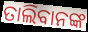
ତାଲିବାନଙ୍କ